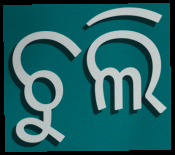
ଚୁଲି